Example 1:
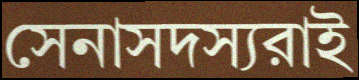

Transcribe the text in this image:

সেনাসদস্যরাই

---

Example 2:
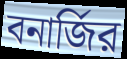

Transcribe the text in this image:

বনার্জির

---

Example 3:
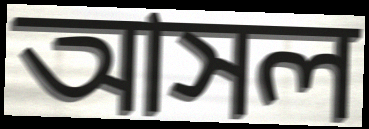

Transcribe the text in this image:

আসল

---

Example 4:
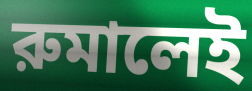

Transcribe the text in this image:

রুমালেই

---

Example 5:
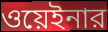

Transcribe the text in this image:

ওয়েইনার